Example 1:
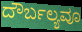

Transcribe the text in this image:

ದೌರ್ಬಲ್ಯವೂ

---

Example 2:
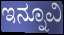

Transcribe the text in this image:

ಇನ್ನೂವಿ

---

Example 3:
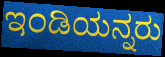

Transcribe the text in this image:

ಇಂಡಿಯನ್ನರು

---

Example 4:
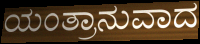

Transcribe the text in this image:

ಯಂತ್ರಾನುವಾದ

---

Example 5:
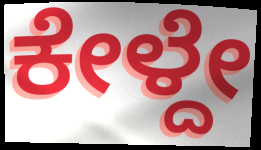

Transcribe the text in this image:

ಕೇಳ್ದೇ